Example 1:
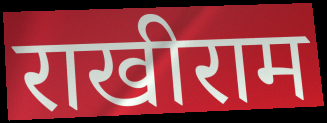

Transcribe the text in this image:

राखीराम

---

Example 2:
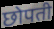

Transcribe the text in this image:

छोपती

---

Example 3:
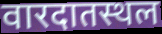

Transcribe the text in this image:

वारदातस्थल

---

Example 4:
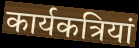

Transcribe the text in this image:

कार्यकत्रियां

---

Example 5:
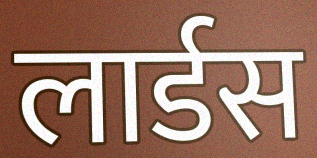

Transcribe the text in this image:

लार्डस